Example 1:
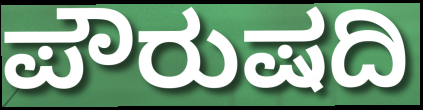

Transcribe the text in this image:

ಪೌರುಷದಿ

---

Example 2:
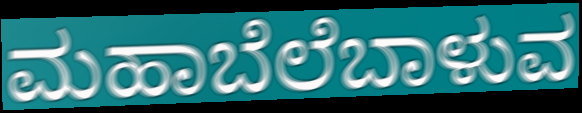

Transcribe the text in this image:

ಮಹಾಬೆಲೆಬಾಳುವ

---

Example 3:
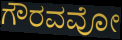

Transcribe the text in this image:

ಗೌರವವೋ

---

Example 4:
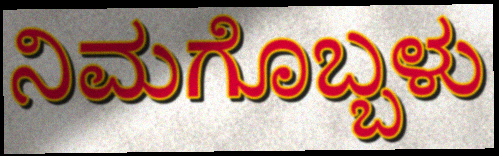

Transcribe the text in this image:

ನಿಮಗೊಬ್ಬಳು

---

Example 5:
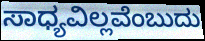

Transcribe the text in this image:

ಸಾಧ್ಯವಿಲ್ಲವೆಂಬುದು